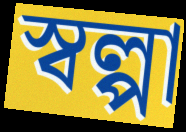
স্বল্পা